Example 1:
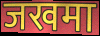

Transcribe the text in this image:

जखमा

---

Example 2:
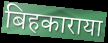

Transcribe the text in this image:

बिहकाराया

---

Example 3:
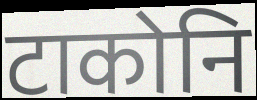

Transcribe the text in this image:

टाकोनि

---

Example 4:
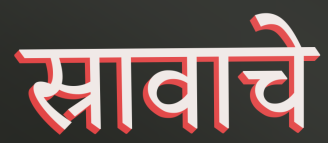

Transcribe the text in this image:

स्रावाचे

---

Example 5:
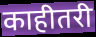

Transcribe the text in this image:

काहीतरी